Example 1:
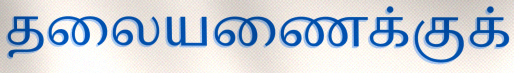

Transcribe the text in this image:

தலையணைக்குக்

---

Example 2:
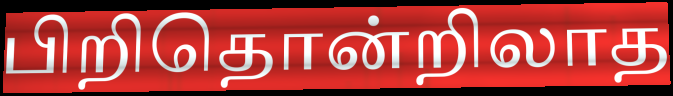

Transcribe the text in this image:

பிறிதொன்றிலாத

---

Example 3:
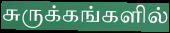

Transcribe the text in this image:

சுருக்கங்களில்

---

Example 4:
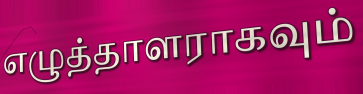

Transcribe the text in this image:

எழுத்தாளராகவும்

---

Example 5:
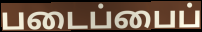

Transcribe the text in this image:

படைப்பைப்